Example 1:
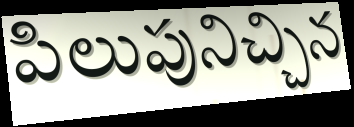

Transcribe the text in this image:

పిలుపునిచ్చిన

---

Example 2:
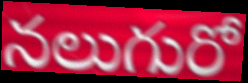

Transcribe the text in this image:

నలుగురో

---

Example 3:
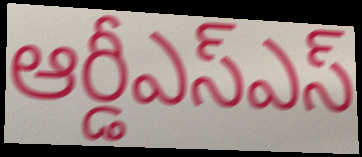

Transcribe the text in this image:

ఆర్డీఎస్ఎస్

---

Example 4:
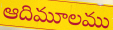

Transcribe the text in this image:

ఆదిమూలము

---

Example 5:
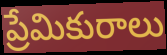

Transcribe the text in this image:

ప్రేమికురాలు